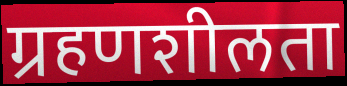
ग्रहणशीलता